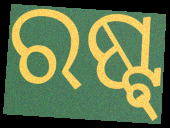
ରଷ୍ଟ୍